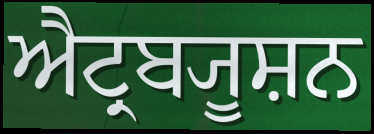
ਐਟ੍ਰਬ੍ਯੂਸ਼ਨ